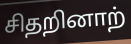
சிதறினாற்